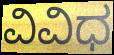
ವಿವಿಧ